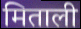
मिताली